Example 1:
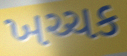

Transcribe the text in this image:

ખચ્ચક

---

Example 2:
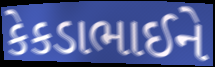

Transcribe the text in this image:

કેકડાભાઈને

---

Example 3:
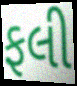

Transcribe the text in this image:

ફલી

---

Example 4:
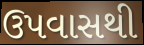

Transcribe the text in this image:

ઉપવાસથી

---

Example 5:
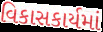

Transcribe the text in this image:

વિકાસકાર્યમાં